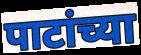
पाटांच्या